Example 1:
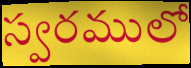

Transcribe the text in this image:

స్వరములో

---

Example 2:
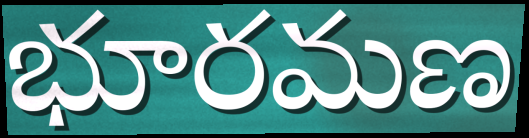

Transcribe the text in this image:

భూరమణ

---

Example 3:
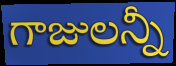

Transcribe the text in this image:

గాజులన్నీ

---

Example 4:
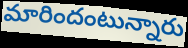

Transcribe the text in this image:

మారిందంటున్నారు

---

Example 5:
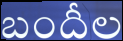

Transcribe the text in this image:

బందీల